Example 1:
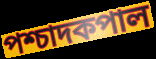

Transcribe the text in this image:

পশ্চাদকপাল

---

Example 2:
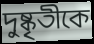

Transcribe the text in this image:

দুষ্কৃতীকে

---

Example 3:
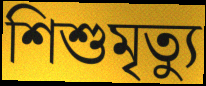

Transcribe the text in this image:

শিশুমৃত্যু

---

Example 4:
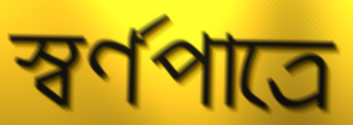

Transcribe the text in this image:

স্বর্ণপাত্রে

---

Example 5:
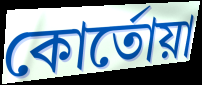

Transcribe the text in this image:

কোর্তোয়া